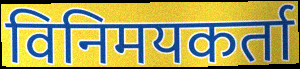
विनिमयकर्ता